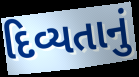
દિવ્યતાનું